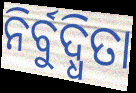
ନିର୍ବୁଦ୍ଧିତା